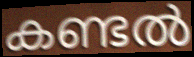
കണ്ടൽ